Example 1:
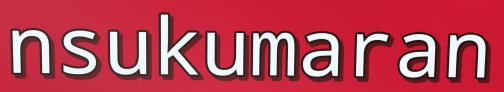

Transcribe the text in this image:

nsukumaran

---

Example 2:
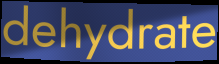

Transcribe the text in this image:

dehydrate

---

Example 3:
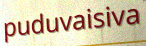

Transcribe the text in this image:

puduvaisiva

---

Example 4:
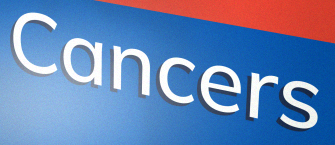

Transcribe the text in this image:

Cancers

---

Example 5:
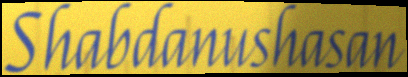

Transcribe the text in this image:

Shabdanushasan